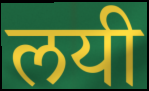
लयी